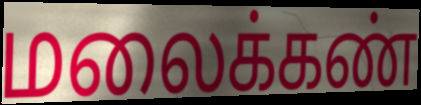
மலைக்கண்